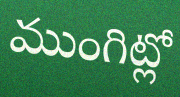
ముంగిట్లో